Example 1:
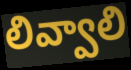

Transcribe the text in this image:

లివ్వాలి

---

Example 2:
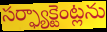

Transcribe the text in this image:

సర్ఫ్యాక్టెంట్లను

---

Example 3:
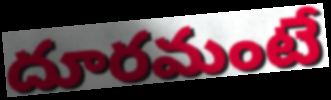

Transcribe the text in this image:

దూరమంటే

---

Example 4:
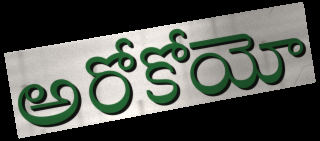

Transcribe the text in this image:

అరోకోయో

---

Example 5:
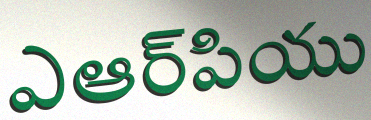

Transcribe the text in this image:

ఎఆర్‌పియు